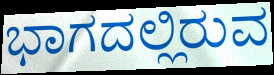
ಭಾಗದಲ್ಲಿರುವ